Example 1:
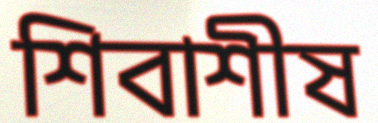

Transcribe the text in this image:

শিবাশীষ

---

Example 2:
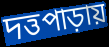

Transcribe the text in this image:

দত্তপাড়ায়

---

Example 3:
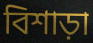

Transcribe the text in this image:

বিশাড়া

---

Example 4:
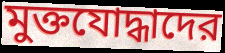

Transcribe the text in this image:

মুক্তযোদ্ধাদের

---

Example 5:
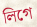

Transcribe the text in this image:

লিগে